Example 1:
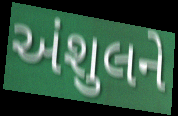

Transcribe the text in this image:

અંશુલને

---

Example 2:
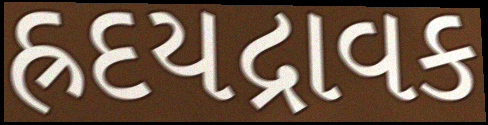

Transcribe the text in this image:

હ્રદયદ્રાવક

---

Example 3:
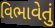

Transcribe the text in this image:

વિભાવેતું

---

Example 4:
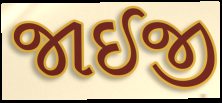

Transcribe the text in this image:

જાઈજી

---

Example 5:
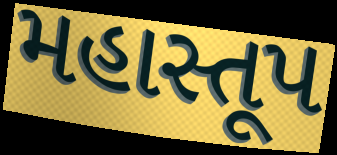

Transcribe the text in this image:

મહાસ્તૂપ